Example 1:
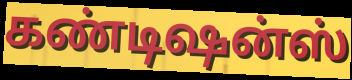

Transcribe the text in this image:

கண்டிஷன்ஸ்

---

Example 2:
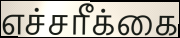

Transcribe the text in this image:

எச்சரீக்கை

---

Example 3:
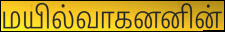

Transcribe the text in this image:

மயில்வாகனனின்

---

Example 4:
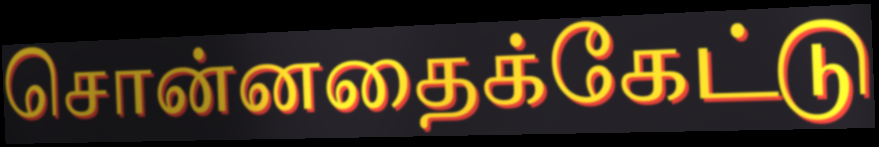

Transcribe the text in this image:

சொன்னதைக்கேட்டு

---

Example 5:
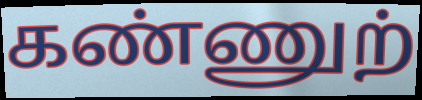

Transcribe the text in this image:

கண்ணுற்